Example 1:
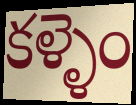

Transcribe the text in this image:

కళ్ళెం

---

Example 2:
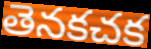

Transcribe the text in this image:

తెనకచక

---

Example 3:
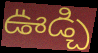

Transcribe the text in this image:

ఊడ్చి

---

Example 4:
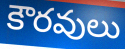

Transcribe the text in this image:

కౌరవులు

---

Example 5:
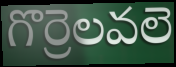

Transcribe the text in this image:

గొర్రెలవలె